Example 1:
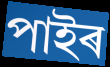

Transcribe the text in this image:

পাইৰ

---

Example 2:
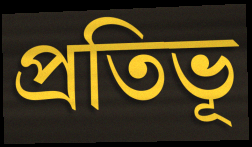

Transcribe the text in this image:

প্ৰতিভূ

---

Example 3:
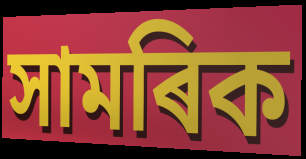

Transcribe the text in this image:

সামৰিক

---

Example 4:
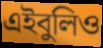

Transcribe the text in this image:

এইবুলিও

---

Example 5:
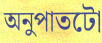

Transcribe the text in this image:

অনুপাতটো